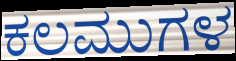
ಕಲಮುಗಳ